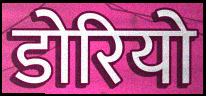
डोरियो